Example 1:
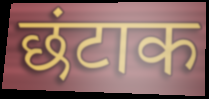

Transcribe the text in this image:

छंटाक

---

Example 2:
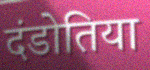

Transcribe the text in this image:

दंडोतिया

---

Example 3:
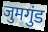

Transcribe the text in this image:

जुमगुंड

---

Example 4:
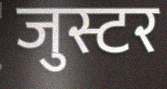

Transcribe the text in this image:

जुस्टर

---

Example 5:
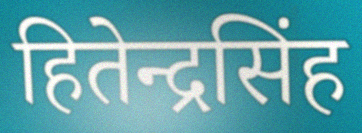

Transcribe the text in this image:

हितेन्द्रसिंह